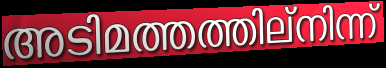
അടിമത്തത്തില്നിന്ന്